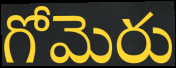
గోమెరు